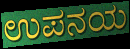
ಉಪನಯ